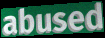
abused